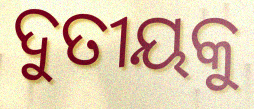
ଦୁତୀୟକୁ